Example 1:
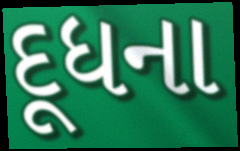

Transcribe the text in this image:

દૂધના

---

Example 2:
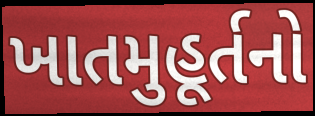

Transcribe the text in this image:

ખાતમુહૂર્તનો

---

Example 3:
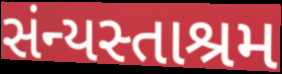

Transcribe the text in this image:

સંન્યસ્તાશ્રમ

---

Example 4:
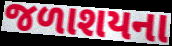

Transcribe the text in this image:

જળાશયના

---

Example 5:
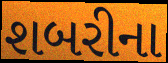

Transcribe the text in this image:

શબરીના